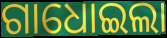
ଗାଧୋଇଲା